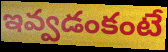
ఇవ్వడంకంటే